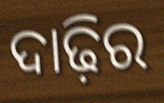
ଦାଢ଼ିର